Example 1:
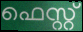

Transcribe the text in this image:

ഫെസ്റ്റ്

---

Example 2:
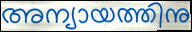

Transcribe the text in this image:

അന്യായത്തിനു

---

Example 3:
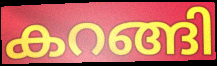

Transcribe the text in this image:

കറങ്ങി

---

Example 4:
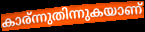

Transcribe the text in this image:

കാര്ന്നുതിന്നുകയാണ്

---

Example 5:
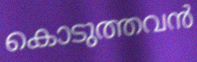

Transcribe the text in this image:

കൊടുത്തവൻ